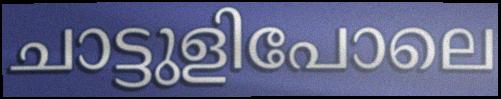
ചാട്ടുളിപോലെ